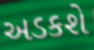
અડકશે